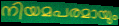
നിയമപരമായും